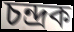
চন্দ্ৰক